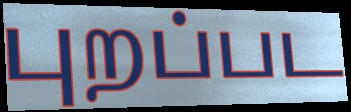
புறப்பட